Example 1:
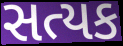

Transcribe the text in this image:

સત્યક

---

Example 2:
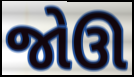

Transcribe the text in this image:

જોઊ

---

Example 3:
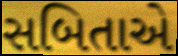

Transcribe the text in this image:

સબિતાએ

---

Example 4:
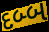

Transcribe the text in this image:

દબ્બ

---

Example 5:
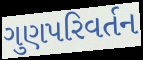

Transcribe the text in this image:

ગુણપરિવર્તન